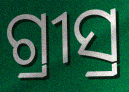
ଗ୍ରୀସ୍ର